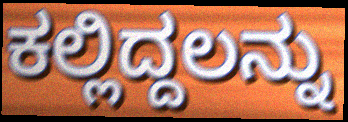
ಕಲ್ಲಿದ್ದಲನ್ನು